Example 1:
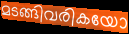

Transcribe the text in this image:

മടങ്ങിവരികയോ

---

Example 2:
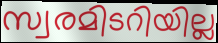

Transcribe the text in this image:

സ്വരമിടറിയില്ല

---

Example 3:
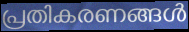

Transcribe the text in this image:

പ്രതികരണങ്ങൾ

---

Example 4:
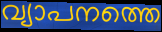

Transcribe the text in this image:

വ്യാപനത്തെ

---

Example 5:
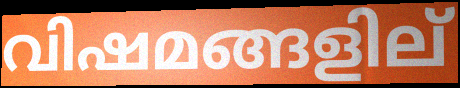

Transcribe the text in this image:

വിഷമങ്ങളില്